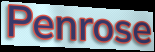
Penrose